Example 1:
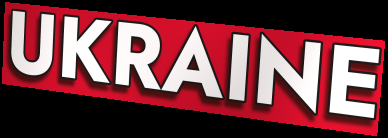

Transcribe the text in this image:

UKRAINE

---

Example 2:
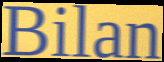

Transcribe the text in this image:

Bilan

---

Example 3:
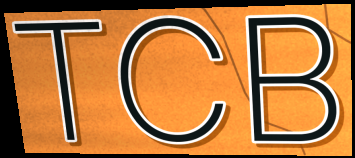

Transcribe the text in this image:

TCB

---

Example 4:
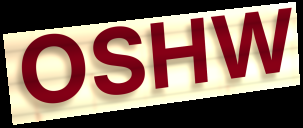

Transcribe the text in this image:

OSHW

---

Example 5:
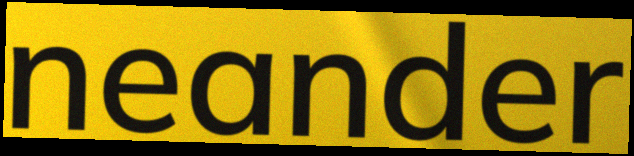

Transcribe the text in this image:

neander